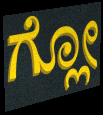
ಗ್ಲೋ